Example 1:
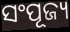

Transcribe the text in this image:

ସଂପୂଜ୍ଯ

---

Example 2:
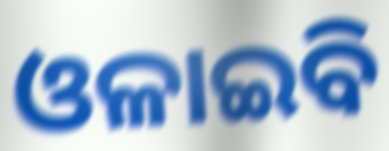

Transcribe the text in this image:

ଓଳାଇବି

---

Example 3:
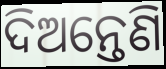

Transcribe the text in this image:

ଦିଅନ୍ତେଣି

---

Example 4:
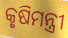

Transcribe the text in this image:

କୃଷିମନ୍ତ୍ରୀ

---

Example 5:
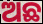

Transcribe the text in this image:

ଅଛ